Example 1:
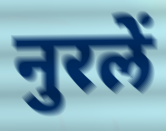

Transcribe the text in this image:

नुरलें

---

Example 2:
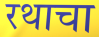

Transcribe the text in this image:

रथाचा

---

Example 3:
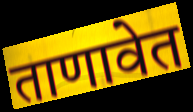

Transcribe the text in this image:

ताणावेत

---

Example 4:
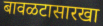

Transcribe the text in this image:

बावळटासारखा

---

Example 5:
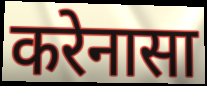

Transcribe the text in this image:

करेनासा